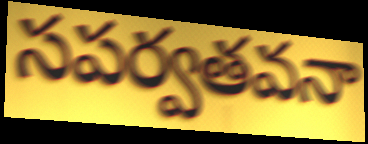
సపర్వతవనా